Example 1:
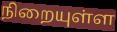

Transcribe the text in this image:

நிறையுள்ள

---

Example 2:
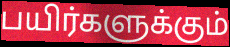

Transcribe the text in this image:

பயிர்களுக்கும்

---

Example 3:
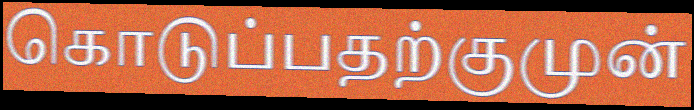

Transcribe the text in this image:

கொடுப்பதற்குமுன்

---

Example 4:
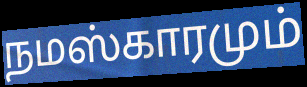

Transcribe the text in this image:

நமஸ்காரமும்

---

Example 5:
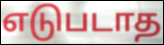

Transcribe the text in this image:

எடுபடாத